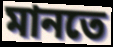
মানতে